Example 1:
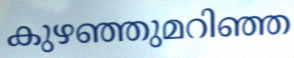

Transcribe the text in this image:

കുഴഞ്ഞുമറിഞ്ഞ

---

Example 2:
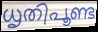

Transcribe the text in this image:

ധൃതിപൂണ്ട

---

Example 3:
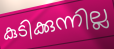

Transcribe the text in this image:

കുടിക്കുന്നില്ല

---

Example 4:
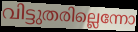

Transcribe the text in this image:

വിട്ടുതരില്ലെന്നോ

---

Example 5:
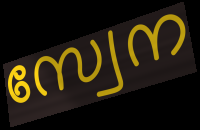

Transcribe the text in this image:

സ്വേന